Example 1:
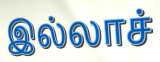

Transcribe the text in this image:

இல்லாச்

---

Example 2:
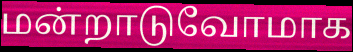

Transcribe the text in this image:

மன்றாடுவோமாக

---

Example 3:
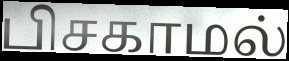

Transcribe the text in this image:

பிசகாமல்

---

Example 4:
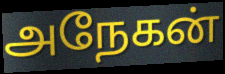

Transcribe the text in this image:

அநேகன்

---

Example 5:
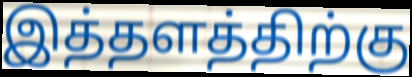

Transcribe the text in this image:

இத்தளத்திற்கு